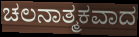
ಚಲನಾತ್ಮಕವಾದ